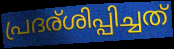
പ്രദര്ശിപ്പിച്ചത്